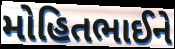
મોહિતભાઈને